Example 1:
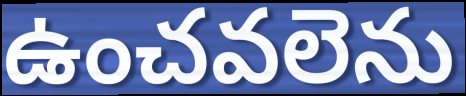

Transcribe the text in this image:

ఉంచవలెను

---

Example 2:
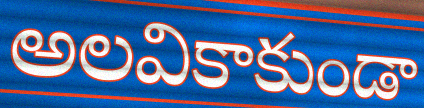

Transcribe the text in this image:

అలవికాకుండా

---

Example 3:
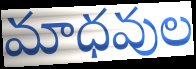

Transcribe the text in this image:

మాధవుల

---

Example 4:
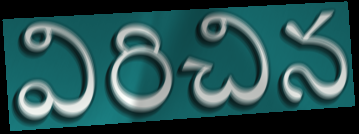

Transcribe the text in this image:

విరిచిన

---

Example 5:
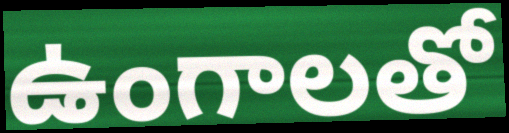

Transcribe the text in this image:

ఉంగాలతో